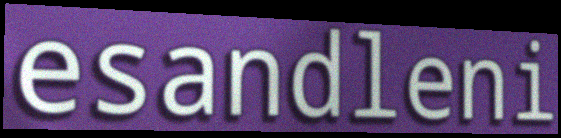
esandleni